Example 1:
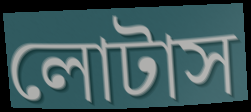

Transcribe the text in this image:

লোটাস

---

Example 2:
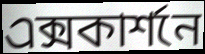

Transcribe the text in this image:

এক্সকার্শনে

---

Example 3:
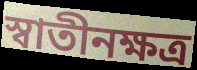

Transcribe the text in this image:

স্বাতীনক্ষত্র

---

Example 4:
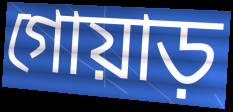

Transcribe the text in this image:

গোয়াড়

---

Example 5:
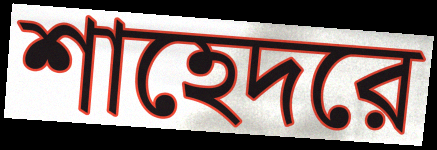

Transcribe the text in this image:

শাহেদরে